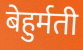
बेहुर्मती